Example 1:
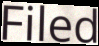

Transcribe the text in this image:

Filed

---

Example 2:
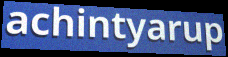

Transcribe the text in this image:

achintyarup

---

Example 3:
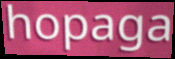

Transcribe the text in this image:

hopaga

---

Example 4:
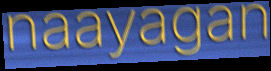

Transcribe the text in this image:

naayagan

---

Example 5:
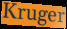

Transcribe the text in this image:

Kruger